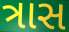
ત્રાસ